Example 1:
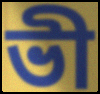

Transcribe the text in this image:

ভী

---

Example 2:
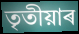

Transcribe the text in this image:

তৃতীয়াৰ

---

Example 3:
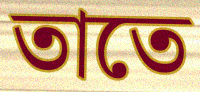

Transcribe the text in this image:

তাতে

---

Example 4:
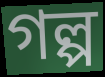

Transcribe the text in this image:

গল্প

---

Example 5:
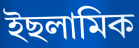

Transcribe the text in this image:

ইছলামিক